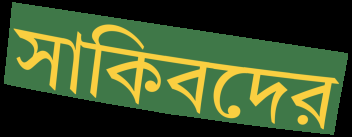
সাকিবদের